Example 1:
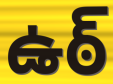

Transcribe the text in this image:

ఉఠ్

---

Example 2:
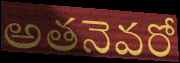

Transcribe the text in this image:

అతనెవరో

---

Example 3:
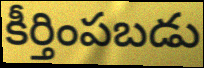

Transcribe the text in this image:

కీర్తింపబడు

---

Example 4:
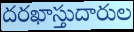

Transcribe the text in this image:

దరఖాస్తుదారుల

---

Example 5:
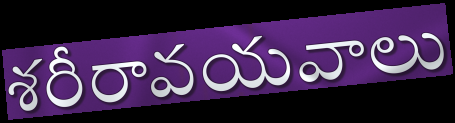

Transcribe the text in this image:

శరీరావయవాలు